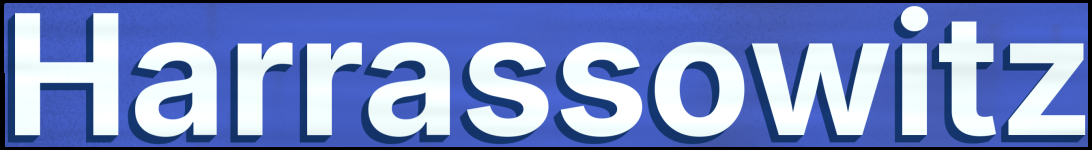
Harrassowitz